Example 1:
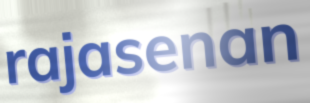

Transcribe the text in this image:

rajasenan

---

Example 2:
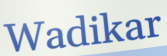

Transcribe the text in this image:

Wadikar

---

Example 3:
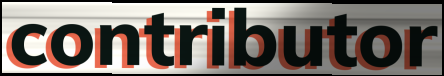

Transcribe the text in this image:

contributor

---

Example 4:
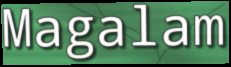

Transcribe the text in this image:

Magalam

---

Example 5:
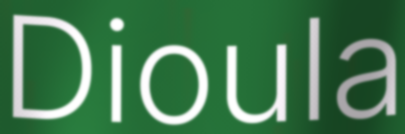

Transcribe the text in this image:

Dioula